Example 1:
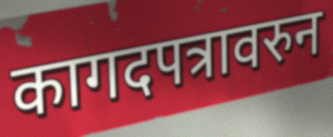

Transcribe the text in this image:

कागदपत्रावरुन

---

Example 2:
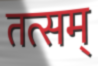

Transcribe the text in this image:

तत्सम्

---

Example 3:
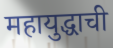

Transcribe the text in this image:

महायुद्धाची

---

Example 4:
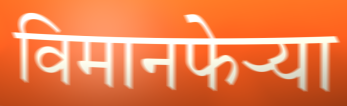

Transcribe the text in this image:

विमानफेऱ्या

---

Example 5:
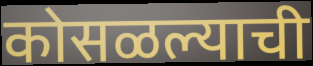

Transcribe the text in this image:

कोसळल्याची